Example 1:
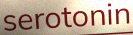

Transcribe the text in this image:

serotonin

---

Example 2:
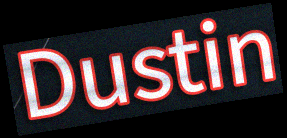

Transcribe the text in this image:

Dustin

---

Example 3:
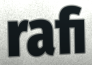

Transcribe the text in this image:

rafi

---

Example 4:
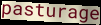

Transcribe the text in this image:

pasturage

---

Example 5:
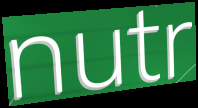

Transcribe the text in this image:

nutr